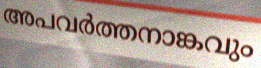
അപവർത്തനാങ്കവും